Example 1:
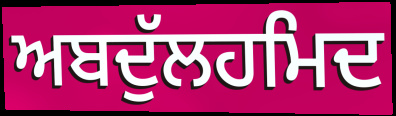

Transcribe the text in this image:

ਅਬਦੁੱਲਹਮਿਦ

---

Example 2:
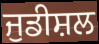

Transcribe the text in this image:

ਜੁਡੀਸ਼ਲ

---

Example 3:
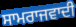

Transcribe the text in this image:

ਸਾਮਰਾਜਵਾਦੀ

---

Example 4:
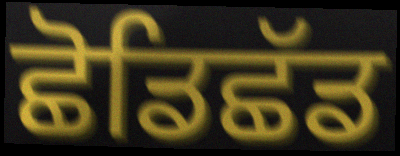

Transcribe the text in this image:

ਛੋਡਿਛੱਡ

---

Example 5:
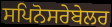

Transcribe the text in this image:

ਸਪਿਨੋਸਰੇਬੇਲਰ